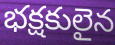
భక్షకులైన